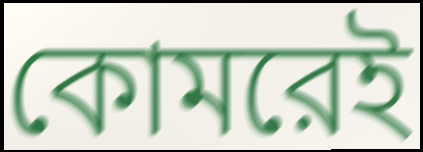
কোমরেই